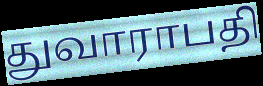
துவாராபதி